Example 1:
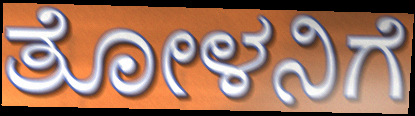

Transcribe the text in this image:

ತೋಳನಿಗೆ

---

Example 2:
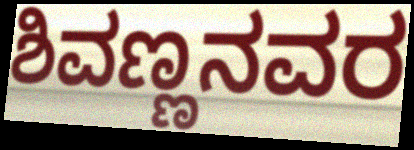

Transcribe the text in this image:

ಶಿವಣ್ಣನವರ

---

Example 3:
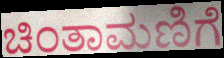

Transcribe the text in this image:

ಚಿಂತಾಮಣಿಗೆ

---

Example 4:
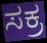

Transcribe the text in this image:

ಸಕ್ರ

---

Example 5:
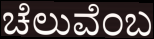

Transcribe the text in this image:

ಚೆಲುವೆಂಬ